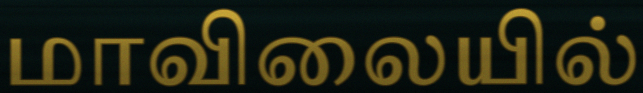
மாவிலையில்